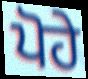
ਪੋਹੇ